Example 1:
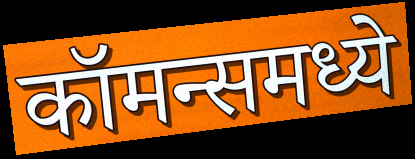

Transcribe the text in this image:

कॉमन्समध्ये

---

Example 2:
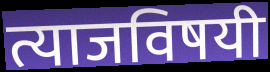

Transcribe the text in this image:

त्याजविषयी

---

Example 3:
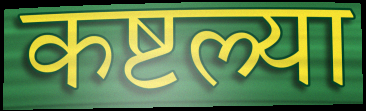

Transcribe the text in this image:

कष्टल्या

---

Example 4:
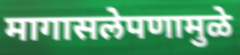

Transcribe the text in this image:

मागासलेपणामुळे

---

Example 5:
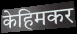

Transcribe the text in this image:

केहिमकर